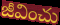
జీవించు